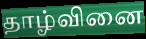
தாழ்வினை